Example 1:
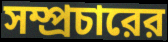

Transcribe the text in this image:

সম্প্রচারের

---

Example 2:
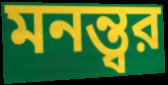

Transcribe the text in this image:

মনন্ত্বর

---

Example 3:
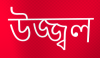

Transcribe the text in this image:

উজ্জ্বল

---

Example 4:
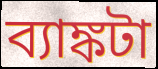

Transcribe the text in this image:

ব্যাঙ্কটা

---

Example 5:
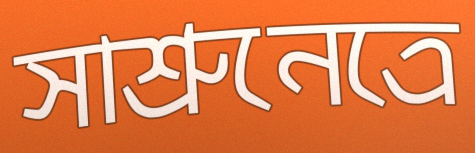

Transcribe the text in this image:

সাশ্রুনেত্রে